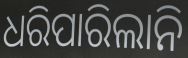
ଧରିପାରିଲାନି